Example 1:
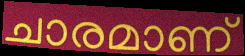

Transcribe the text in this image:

ചാരമാണ്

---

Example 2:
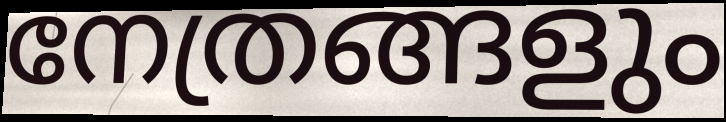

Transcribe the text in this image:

നേത്രങ്ങളും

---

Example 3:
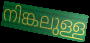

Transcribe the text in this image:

നിങ്കലുള്ള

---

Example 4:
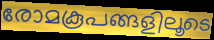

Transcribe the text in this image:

രോമകൂപങ്ങളിലൂടെ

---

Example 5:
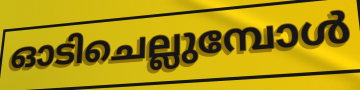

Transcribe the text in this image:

ഓടിചെല്ലുമ്പോൾ